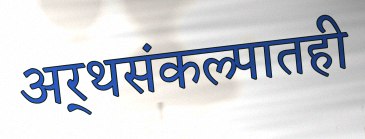
अर्थसंकल्पातही